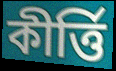
কীর্ত্তি